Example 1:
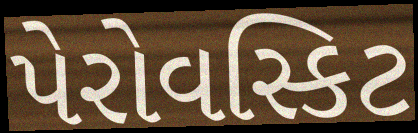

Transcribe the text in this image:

પેરોવસ્કિટ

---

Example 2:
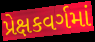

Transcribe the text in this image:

પ્રેક્ષકવર્ગમાં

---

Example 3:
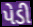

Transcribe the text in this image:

પેડી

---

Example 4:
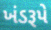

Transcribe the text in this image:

ખંડરૂપે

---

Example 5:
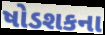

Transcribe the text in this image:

ષોડશકના